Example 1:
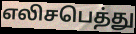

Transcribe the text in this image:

எலிசபெத்து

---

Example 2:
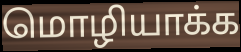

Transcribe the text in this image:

மொழியாக்க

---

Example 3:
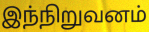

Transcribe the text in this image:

இந்நிறுவனம்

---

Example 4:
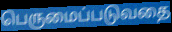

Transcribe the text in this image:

பெருமைப்படுவதை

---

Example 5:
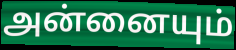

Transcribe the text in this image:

அன்னையும்